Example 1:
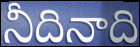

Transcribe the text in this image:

నీదినాది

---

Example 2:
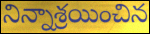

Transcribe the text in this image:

నిన్నాశ్రయించిన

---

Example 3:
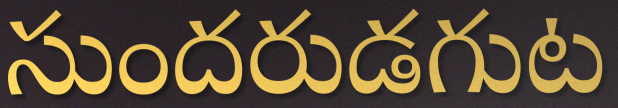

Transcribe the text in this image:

సుందరుడగుట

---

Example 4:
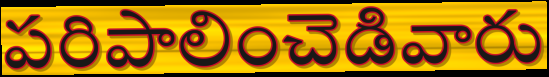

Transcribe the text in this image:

పరిపాలించెడివారు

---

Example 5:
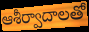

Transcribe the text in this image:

ఆశీర్వాదాలతో